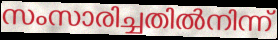
സംസാരിച്ചതിൽനിന്ന്